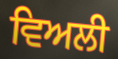
ਵਿਅਲੀ